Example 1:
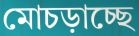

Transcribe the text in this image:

মোচড়াচ্ছে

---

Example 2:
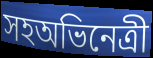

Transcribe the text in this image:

সহঅভিনেত্রী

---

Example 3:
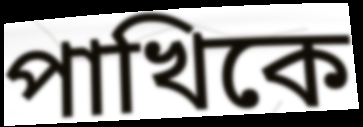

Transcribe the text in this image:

পাখিকে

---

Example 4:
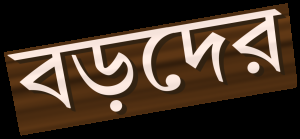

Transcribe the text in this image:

বড়দের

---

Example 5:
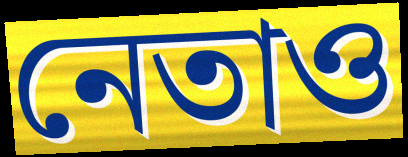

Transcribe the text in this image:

নেতাও